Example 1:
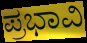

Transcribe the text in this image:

ಪ್ರಭಾವಿ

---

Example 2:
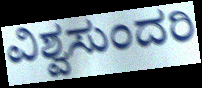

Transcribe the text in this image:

ವಿಶ್ವಸುಂದರಿ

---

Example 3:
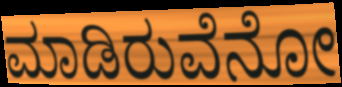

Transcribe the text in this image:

ಮಾಡಿರುವೆನೋ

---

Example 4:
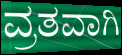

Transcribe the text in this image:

ವ್ರತವಾಗಿ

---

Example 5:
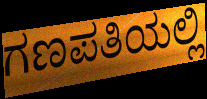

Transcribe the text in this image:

ಗಣಪತಿಯಲ್ಲಿ